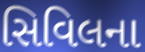
સિવિલના